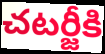
చటర్జీకి